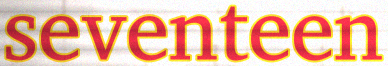
seventeen